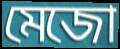
মেজো